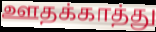
ஊதக்காத்து